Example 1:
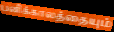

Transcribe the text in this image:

பனிக்காலத்தையும்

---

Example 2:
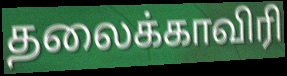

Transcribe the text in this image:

தலைக்காவிரி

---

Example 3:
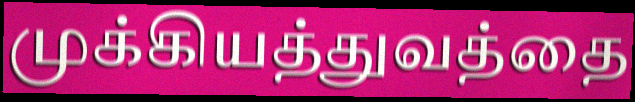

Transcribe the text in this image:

முக்கியத்துவத்தை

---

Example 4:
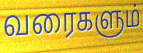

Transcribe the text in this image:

வரைகளும்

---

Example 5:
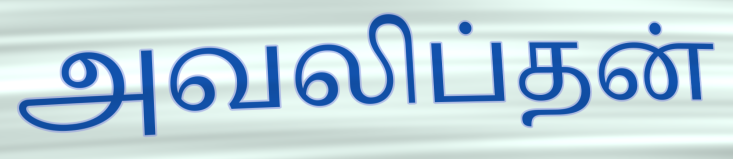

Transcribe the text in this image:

அவலிப்தன்